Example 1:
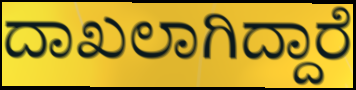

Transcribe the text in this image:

ದಾಖಲಾಗಿದ್ದಾರೆ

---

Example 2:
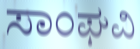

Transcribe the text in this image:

ಸಾಂಘವಿ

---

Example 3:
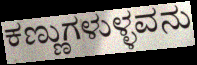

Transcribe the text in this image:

ಕಣ್ಣುಗಳುಳ್ಳವನು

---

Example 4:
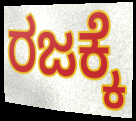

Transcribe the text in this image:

ರಜಕ್ಕೆ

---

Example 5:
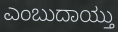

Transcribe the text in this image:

ಎಂಬುದಾಯ್ತು